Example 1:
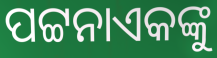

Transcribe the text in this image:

ପଟ୍ଟନାଏକଙ୍କୁ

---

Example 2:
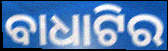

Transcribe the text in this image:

ବାଧାଟିର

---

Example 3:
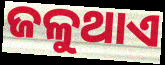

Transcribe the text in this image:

ଜଳୁଥାଏ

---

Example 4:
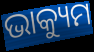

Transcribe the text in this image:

ଭାକ୍ୟୁମ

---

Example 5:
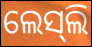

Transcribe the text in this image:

ଲେସ୍‍ଲି